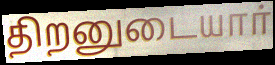
திறனுடையார்